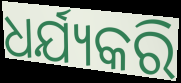
ଧର୍ଯ୍ୟକରି